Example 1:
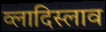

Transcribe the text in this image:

व्लादिस्लाव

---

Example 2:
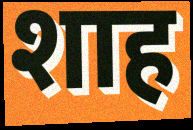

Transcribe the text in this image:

शाह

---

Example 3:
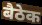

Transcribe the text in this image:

बैठेक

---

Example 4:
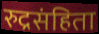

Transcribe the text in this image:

रुद्रसंहिता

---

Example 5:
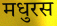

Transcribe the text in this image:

मधुरस